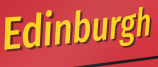
Edinburgh